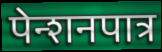
पेन्शनपात्र